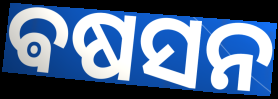
ଵଷସନ